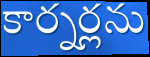
కార్నర్లను